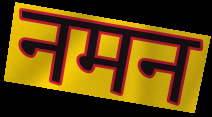
नमन